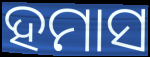
ହମାସ